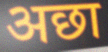
अछा